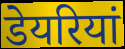
डेयरियां